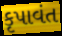
કૃપાવંત